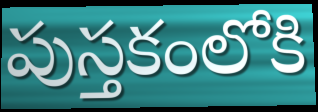
పుస్తకంలోకి